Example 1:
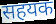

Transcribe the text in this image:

सहयक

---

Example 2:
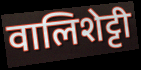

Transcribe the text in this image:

वालिशेट्टी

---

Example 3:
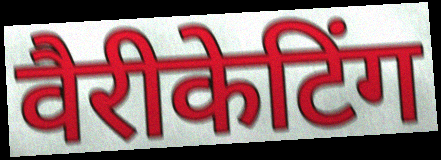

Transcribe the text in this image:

वैरीकेटिंग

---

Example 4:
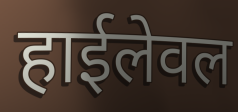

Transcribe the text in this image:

हाईलेवल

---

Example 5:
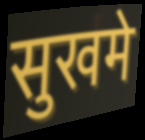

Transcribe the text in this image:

सुखमे